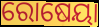
ରୋଷେୟା